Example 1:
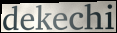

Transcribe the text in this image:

dekechi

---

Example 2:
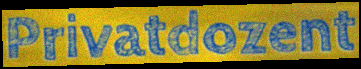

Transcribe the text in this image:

Privatdozent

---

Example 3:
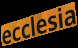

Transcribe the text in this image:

ecclesia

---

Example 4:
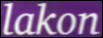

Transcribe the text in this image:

lakon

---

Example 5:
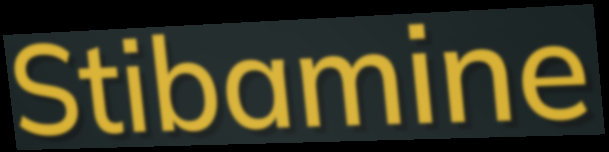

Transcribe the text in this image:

Stibamine